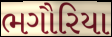
ભગૌરિયા